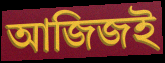
আজিজই